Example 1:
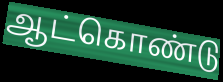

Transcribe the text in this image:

ஆட்கொண்டு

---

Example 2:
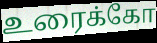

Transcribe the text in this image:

உரைக்கோ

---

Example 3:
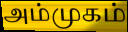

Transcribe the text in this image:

அம்முகம்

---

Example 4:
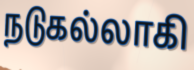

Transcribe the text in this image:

நடுகல்லாகி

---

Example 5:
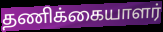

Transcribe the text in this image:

தணிக்கையாளர்